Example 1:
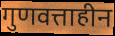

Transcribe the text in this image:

गुणवत्ताहीन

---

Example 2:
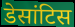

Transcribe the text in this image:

डेसांटिस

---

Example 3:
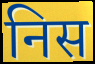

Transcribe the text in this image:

निस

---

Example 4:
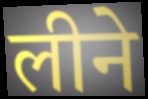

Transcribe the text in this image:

लीने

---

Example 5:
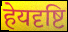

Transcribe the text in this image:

हेयदृष्टि